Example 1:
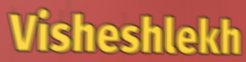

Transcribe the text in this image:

Visheshlekh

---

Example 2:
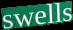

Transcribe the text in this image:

swells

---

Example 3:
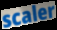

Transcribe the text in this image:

scaler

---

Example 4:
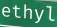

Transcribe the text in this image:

ethyl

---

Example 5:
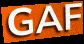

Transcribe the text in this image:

GAF